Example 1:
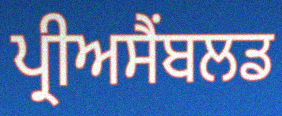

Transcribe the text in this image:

ਪ੍ਰੀਅਸੈਂਬਲਡ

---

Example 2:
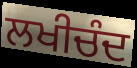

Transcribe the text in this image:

ਲਖੀਚੰਦ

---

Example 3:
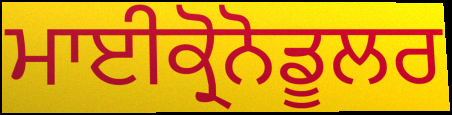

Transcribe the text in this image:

ਮਾਈਕ੍ਰੋਨੋਡੂਲਰ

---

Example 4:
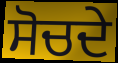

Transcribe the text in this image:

ਸੋਚਦੇ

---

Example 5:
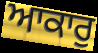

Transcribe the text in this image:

ਆਕਾਰੁ